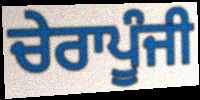
ਚੇਰਾਪੂੰਜੀ